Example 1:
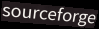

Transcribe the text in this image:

sourceforge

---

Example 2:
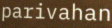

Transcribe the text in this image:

parivahan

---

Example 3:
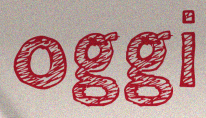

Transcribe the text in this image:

oggi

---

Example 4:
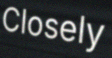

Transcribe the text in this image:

Closely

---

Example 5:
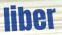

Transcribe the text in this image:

liber